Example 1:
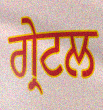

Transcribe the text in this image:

ਗ੍ਰੇਟਲ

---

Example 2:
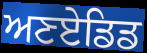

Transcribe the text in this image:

ਅਣਏਡਿਡ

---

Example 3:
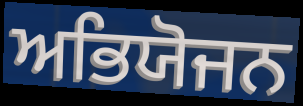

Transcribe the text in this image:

ਅਭਿਯੋਜਨ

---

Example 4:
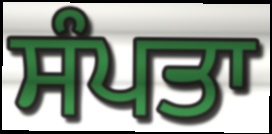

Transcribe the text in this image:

ਸੰਪਤਾ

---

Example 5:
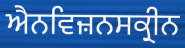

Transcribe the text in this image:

ਐਨਵਿਜ਼ਨਸਕ੍ਰੀਨ